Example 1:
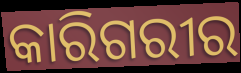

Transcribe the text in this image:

କାରିଗରୀର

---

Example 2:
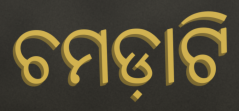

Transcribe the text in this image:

ଚମଡ଼ାଟି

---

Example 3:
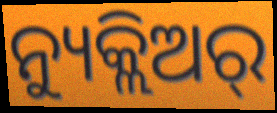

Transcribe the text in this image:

ନ୍ୟୁକ୍ଲିଅର୍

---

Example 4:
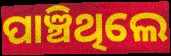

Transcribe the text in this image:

ପାଞ୍ଚିଥିଲେ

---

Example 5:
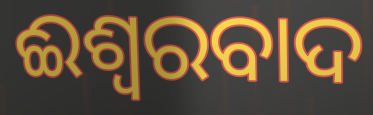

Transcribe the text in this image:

ଈଶ୍ବରବାଦ